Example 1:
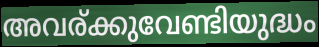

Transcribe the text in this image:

അവര്ക്കുവേണ്ടിയുദ്ധം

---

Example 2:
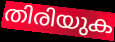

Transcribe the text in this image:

തിരിയുക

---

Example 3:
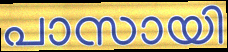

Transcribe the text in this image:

പാസായി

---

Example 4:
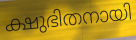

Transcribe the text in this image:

ക്ഷുഭിതനായി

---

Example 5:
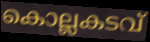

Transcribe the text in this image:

കൊല്ലകടവ്